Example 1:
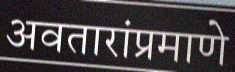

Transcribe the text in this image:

अवतारांप्रमाणे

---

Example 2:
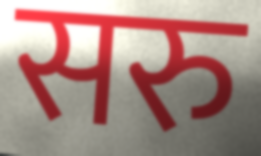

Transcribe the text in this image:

सरु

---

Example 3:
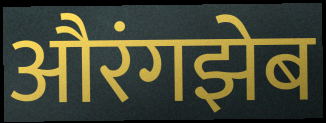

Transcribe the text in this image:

औरंगझेब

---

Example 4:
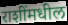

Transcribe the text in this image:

राशींमधील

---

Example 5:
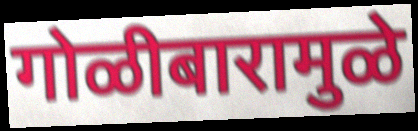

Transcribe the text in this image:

गोळीबारामुळे